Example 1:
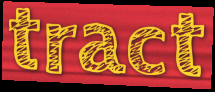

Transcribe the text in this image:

tract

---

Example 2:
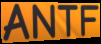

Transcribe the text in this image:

ANTF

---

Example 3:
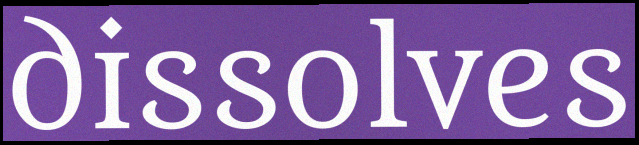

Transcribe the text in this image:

dissolves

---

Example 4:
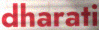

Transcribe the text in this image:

dharati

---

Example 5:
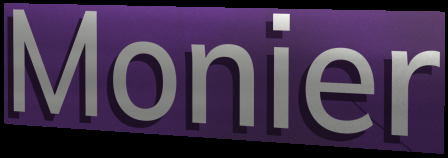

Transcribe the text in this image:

Monier